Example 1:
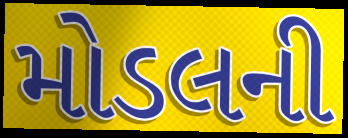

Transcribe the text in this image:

મોડલની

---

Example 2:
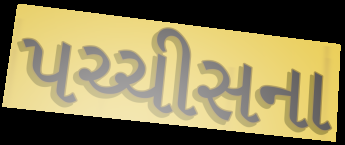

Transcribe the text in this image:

પચ્ચીસના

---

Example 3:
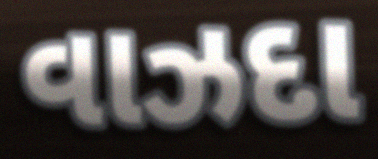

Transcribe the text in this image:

વાઝદા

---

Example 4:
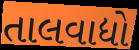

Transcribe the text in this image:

તાલવાદ્યો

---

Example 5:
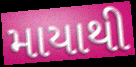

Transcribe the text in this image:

માયાથી